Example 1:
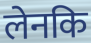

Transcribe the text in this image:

लेनकि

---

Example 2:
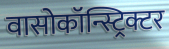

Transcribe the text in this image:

वासोकॉन्स्ट्रिक्टर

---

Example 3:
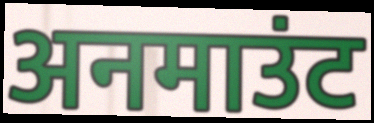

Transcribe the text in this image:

अनमाउंट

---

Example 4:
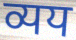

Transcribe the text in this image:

व्यय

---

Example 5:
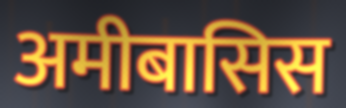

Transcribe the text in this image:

अमीबासिस